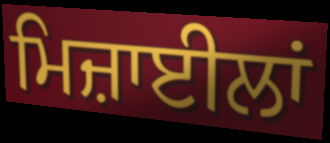
ਮਿਜ਼ਾਈਲਾਂ